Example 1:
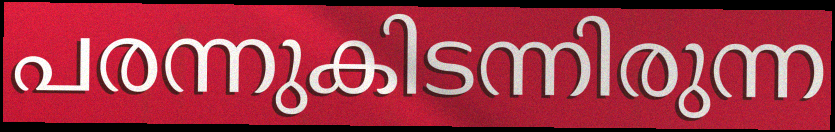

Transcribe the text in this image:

പരന്നുകിടന്നിരുന്ന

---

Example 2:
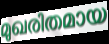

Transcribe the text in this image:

മുഖരിതമായ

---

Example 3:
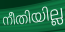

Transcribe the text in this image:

നീതിയില്ല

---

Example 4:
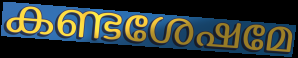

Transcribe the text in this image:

കണ്ടശേഷമേ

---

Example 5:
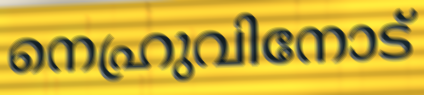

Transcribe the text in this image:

നെഹ്രുവിനോട്